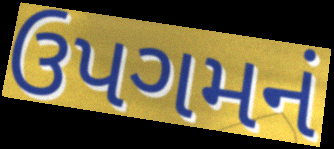
ઉપગમનં